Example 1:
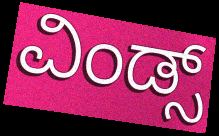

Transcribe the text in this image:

ವಿಂಡ್ಸ್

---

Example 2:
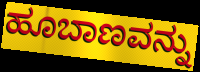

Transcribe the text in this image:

ಹೂಬಾಣವನ್ನು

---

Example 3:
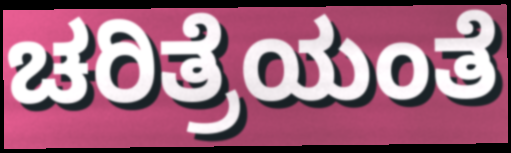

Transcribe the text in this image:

ಚರಿತ್ರೆಯಂತೆ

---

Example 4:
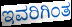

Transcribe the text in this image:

ಇವರಿಗಿಂತ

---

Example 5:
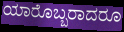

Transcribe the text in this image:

ಯಾರೊಬ್ಬರಾದರೂ